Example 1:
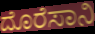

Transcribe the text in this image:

ದೊರೆಸಾನಿ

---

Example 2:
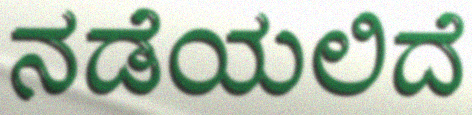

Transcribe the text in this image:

ನಡೆಯಲಿದೆ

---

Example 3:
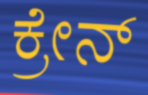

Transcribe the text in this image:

ಕ್ರೇನ್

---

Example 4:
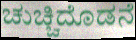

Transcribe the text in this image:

ಚುಚ್ಚಿದೊಡನೆ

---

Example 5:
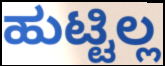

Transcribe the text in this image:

ಹುಟ್ಟಿಲ್ಲ